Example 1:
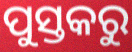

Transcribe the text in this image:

ପୁସ୍ତକରୁ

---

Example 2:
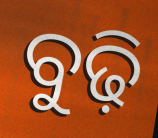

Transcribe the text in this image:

ବୁଢ଼ି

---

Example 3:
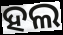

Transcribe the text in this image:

ହଲ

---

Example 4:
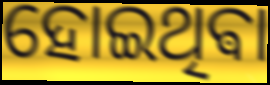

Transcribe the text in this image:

ହୋଇଥିଵା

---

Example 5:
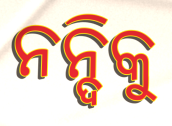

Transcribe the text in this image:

ନନ୍ଦିକୁ